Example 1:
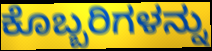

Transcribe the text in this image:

ಕೊಬ್ಬರಿಗಳನ್ನು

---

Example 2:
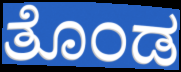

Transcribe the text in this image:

ತೊಂಡ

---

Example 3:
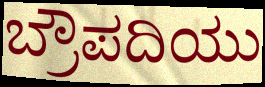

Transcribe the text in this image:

ಬ್ರೌಪದಿಯು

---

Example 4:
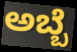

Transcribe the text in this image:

ಅಬ್ಬೆ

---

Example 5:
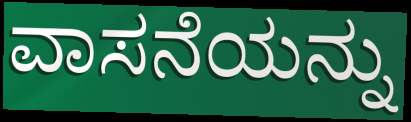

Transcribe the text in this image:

ವಾಸನೆಯನ್ನು